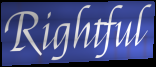
Rightful